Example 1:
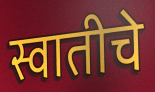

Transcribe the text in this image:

स्वातीचे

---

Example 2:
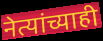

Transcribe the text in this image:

नेत्यांच्याही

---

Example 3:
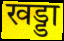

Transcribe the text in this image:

खड्डा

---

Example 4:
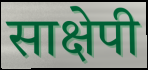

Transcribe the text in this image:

साक्षेपी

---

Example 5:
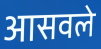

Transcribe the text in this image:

आसवले